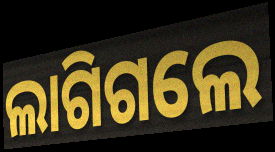
ଲାଗିଗଲେ